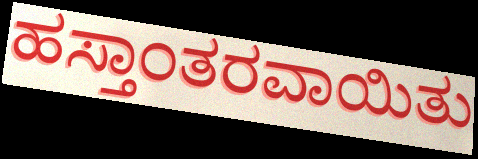
ಹಸ್ತಾಂತರವಾಯಿತು